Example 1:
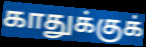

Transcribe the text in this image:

காதுக்குக்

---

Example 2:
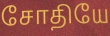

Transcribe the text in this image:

சோதியே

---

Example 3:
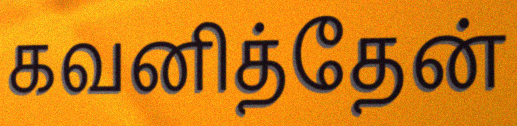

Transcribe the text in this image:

கவனித்தேன்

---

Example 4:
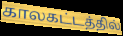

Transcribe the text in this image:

காலகட்டத்தில்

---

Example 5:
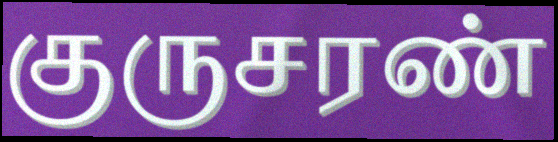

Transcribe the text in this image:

குருசரண்